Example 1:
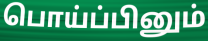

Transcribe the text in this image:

பொய்ப்பினும்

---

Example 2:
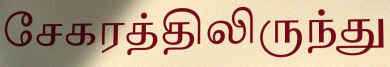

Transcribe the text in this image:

சேகரத்திலிருந்து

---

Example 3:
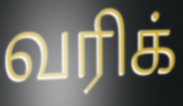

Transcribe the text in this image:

வரிக்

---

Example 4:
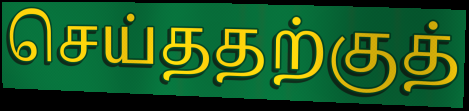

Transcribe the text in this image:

செய்ததற்குத்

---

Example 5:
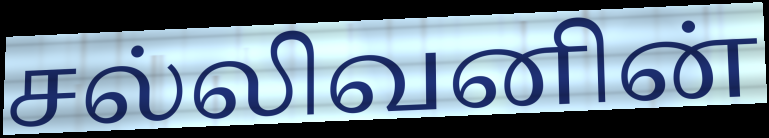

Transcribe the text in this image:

சல்லிவனின்